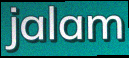
jalam